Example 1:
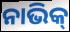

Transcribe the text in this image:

ନାଭିକ୍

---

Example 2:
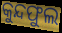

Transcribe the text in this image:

କୁନ୍ଦଫୁଲ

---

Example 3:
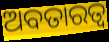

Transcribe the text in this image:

ଅବତାରତ୍ୱ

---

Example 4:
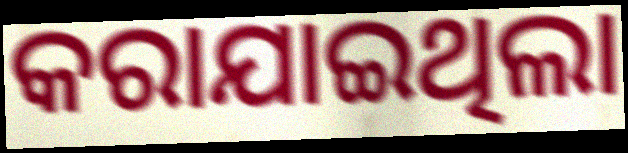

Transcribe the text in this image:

କରାଯାଇଥିଲା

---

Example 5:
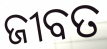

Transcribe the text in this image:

ଜୀବତ